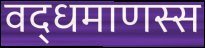
वद्धमाणस्स